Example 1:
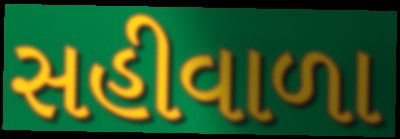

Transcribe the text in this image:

સહીવાળા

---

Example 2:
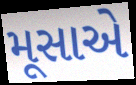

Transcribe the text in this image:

મૂસાએ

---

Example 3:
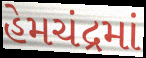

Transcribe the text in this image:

હેમચંદ્રમાં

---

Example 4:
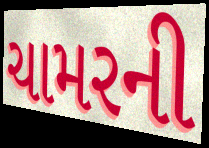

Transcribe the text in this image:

ચામરની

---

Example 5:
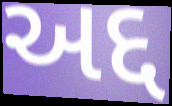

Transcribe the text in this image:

અદ્દ